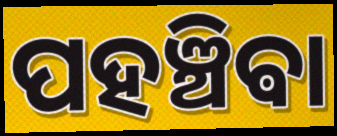
ପହଞ୍ଚିଵା